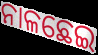
ନାଳଛେଇ